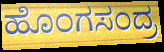
ಹೊಂಗಸಂದ್ರ